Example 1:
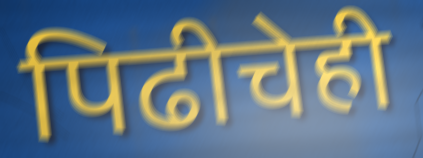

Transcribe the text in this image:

पिढीचेही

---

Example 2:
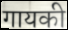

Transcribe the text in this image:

गायकी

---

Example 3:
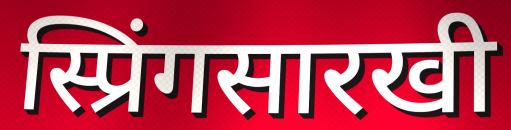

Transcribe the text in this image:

स्प्रिंगसारखी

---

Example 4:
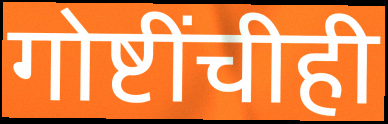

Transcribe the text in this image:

गोष्टींचीही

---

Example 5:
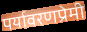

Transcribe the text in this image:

पर्यावरणप्रेमी